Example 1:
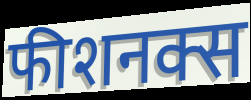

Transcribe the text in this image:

फीशनक्स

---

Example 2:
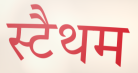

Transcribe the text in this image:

स्टैथम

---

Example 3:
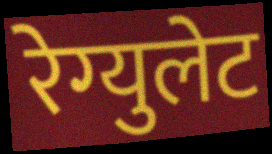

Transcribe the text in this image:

रेग्‍युलेट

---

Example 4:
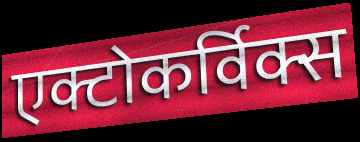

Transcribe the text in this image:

एक्टोकर्विक्स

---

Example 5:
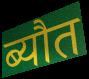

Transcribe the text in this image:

ब्यौत